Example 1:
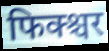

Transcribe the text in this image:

फिक्श्चर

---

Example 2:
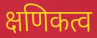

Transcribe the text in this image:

क्षणिकत्व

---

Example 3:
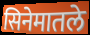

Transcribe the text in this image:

सिनेमातले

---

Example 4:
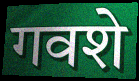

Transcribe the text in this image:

गवशे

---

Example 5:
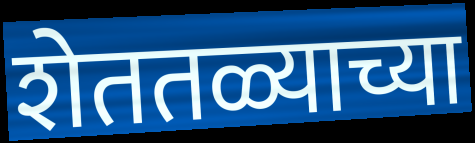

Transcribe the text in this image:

शेततळ्याच्या